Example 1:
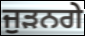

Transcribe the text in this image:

ਜੁਡ਼ਨਗੇ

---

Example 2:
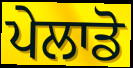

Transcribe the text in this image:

ਪੇਲਾਡੋ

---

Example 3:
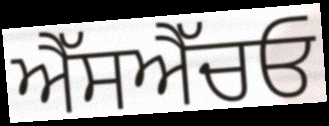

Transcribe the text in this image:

ਐੱਸਐੱਚਓ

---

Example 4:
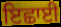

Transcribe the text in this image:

ਇਛਾਈ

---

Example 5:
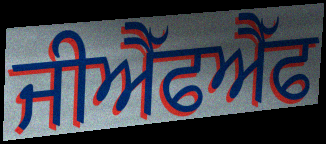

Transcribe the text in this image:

ਜੀਐੱਫਐੱਫ